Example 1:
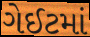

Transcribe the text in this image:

ગેઈટમાં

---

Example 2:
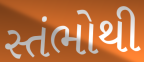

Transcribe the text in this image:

સ્તંભોથી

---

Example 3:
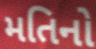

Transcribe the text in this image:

મતિનો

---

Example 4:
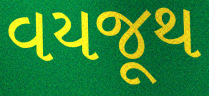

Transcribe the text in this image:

વયજૂથ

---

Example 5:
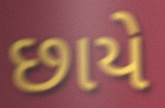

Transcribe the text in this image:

છાયે